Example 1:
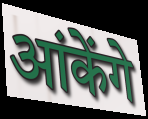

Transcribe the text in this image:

आंकेंगे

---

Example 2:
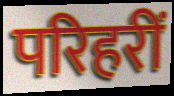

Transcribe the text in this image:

परिहरीं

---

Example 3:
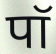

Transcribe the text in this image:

पॉ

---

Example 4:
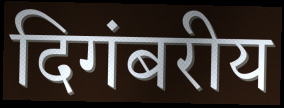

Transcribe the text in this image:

दिगंबरीय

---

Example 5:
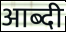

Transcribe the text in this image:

आब्दी